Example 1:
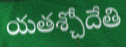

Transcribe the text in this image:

యతశ్చోదేతి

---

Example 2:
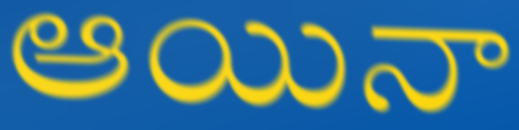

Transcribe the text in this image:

ఆయినా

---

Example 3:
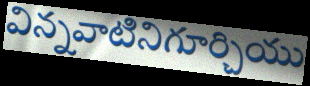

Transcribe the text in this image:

విన్నవాటినిగూర్చియు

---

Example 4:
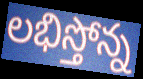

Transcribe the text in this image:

లభిస్తోన్న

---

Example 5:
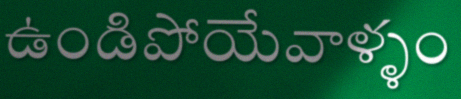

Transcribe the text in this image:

ఉండిపోయేవాళ్ళం